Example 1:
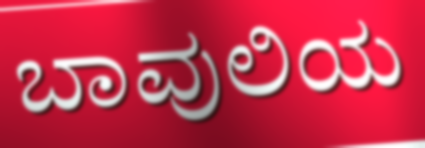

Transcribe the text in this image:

ಬಾವುಲಿಯ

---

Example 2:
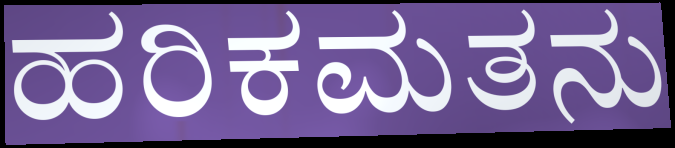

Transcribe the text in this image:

ಹರಿಕಮತನು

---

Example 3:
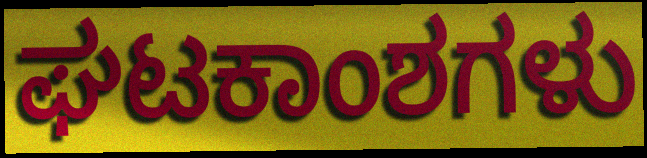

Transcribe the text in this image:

ಘಟಕಾಂಶಗಳು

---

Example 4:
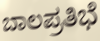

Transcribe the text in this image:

ಬಾಲಪ್ರತಿಭೆ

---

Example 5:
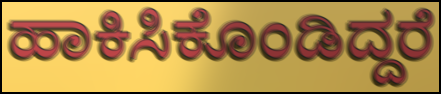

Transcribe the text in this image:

ಹಾಕಿಸಿಕೊಂಡಿದ್ದರೆ